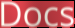
Docs